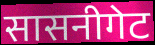
सासनीगेट